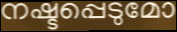
നഷ്ടപ്പെടുമോ